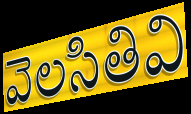
వెలసితివి